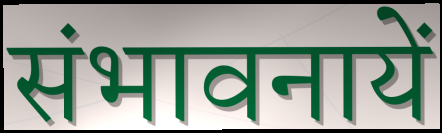
संभावनायें